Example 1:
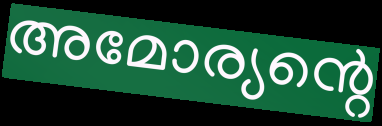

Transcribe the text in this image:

അമോര്യന്റെ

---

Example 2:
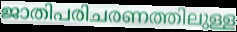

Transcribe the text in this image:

ജാതിപരിചരണത്തിലുള്ള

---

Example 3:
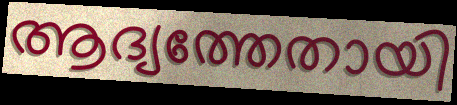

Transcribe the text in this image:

ആദ്യത്തേതായി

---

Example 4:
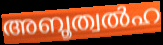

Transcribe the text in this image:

അബൂത്വൽഹ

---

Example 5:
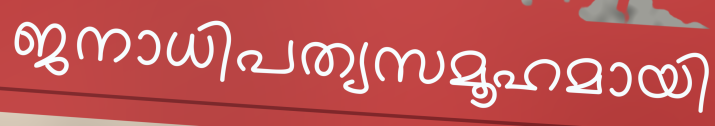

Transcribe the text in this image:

ജനാധിപത്യസമൂഹമായി